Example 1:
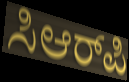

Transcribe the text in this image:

ಸಿಆರ್‌ಪಿ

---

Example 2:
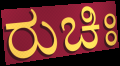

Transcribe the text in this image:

ರುಚಿಃ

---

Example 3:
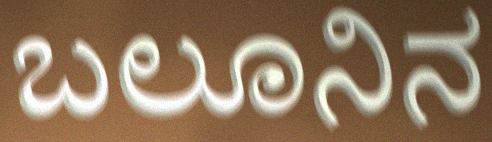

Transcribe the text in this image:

ಬಲೂನಿನ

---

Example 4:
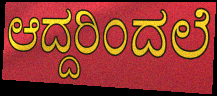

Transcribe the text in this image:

ಆದ್ದರಿಂದಲೆ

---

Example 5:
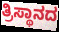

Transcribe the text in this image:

ತ್ರಿಸ್ಥಾನದ